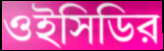
ওইসিডির